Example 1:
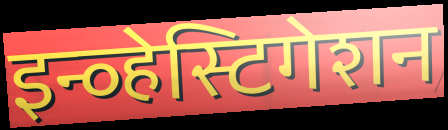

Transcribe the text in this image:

इन्व्हेस्टिगेशन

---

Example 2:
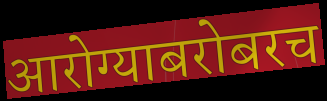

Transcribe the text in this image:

आरोग्याबरोबरच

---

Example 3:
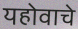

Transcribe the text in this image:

यहोवाचे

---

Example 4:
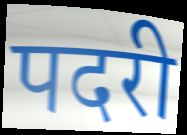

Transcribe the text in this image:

पदरी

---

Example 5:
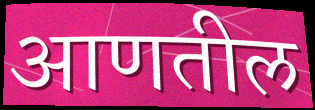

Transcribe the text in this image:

आणतील